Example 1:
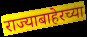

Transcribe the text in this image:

राज्याबाहेरच्या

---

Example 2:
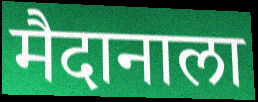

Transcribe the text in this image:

मैदानाला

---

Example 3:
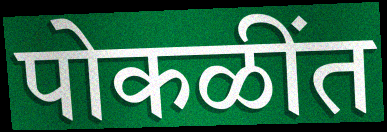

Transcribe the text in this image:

पोकळींत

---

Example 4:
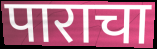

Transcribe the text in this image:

पाराचा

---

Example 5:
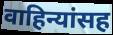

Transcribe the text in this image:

वाहिन्यांसह